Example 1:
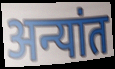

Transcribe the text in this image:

अन्यांत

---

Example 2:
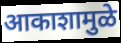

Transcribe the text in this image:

आकाशामुळे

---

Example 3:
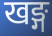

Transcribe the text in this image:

खङ्ग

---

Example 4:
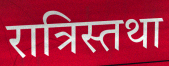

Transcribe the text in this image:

रात्रिस्तथा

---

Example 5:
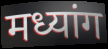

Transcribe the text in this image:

मध्यांग